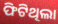
ଫିଟିଥିଲା